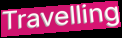
Travelling